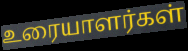
உரையாளர்கள்